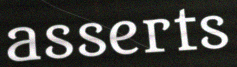
asserts